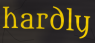
hardly